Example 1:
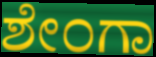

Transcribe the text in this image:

ಶೇಂಗಾ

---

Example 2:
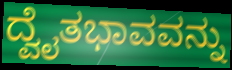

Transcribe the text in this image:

ದ್ವೈತಭಾವವನ್ನು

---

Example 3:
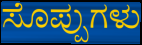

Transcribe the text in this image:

ಸೊಪ್ಪುಗಳು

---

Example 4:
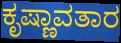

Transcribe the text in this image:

ಕೃಷ್ಣಾವತಾರ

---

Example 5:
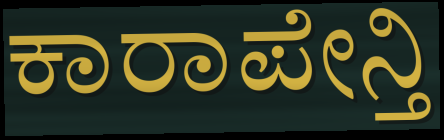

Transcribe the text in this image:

ಕಾರಾಪೇನ್ತಿ